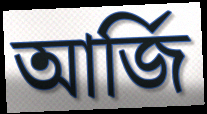
আৰ্জি